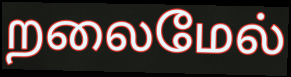
றலைமேல்